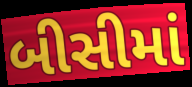
બીસીમાં